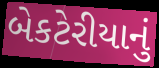
બેકટેરીયાનું